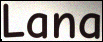
Lana